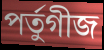
পৰ্তুগীজ